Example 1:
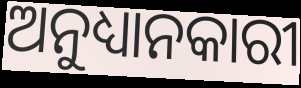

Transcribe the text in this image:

ଅନୁଧ୍ୟାନକାରୀ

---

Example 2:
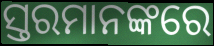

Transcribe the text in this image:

ସ୍ତରମାନଙ୍କରେ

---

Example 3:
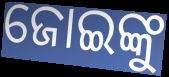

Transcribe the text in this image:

ଜୋଇଙ୍କୁ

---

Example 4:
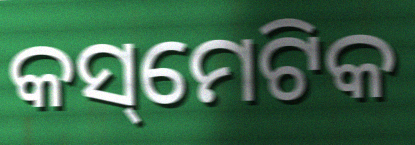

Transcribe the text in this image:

କସ୍‌ମେଟିକ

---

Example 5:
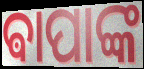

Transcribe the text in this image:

ଵାପାଙ୍କ